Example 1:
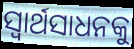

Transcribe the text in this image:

ସ୍ଵାର୍ଥସାଧନକୁ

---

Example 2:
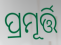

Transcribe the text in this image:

ପ୍ରମୂର୍ତ୍ତି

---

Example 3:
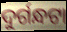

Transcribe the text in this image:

ଦୁର୍ଗନ୍ଧଟା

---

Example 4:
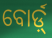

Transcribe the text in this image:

ବୋର୍ଡ଼୍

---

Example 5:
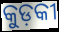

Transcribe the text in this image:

କୁଡ଼କୀ